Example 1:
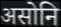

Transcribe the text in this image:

असोनि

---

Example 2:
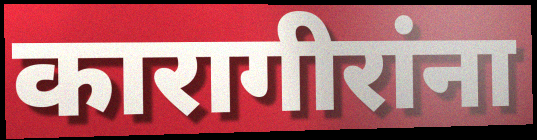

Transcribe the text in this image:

कारागीरांना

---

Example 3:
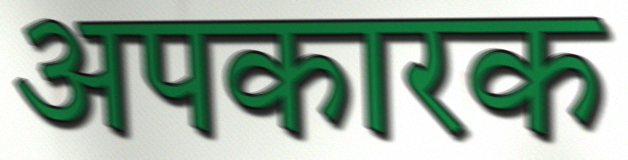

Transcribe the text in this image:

अपकारक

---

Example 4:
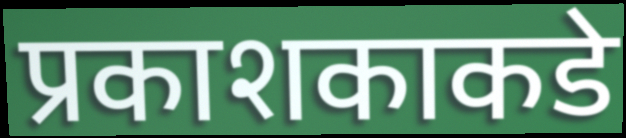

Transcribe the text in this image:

प्रकाशकाकडे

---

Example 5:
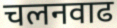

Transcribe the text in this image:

चलनवाढ